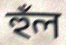
হুঁল